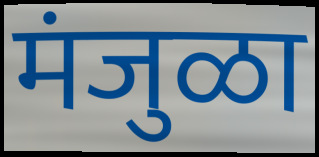
मंजुळा